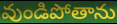
వుండిపోతాను